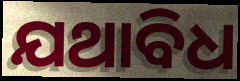
ଯଥାବିଧ